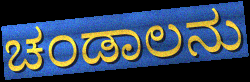
ಚಂಡಾಲನು